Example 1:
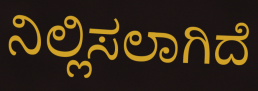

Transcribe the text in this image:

ನಿಲ್ಲಿಸಲಾಗಿದೆ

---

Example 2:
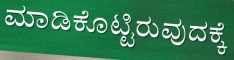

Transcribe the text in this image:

ಮಾಡಿಕೊಟ್ಟಿರುವುದಕ್ಕೆ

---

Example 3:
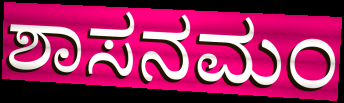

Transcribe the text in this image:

ಶಾಸನಮಂ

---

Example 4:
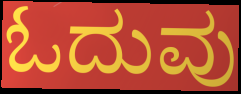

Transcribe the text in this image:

ಓದುವು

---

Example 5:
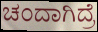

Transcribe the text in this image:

ಚಂದಾಗಿದ್ರೆ